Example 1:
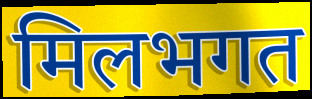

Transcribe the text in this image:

मिलभगत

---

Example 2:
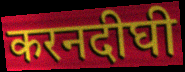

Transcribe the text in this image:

करनदीघी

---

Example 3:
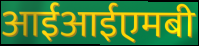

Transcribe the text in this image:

आईआईएमबी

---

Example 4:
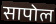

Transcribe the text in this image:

सापोल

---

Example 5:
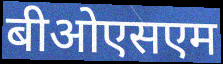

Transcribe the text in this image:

बीओएसएम